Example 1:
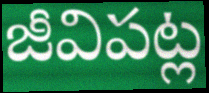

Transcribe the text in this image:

జీవిపట్ల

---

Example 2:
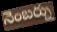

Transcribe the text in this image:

నెంబర్ను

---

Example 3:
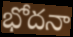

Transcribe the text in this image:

భోదనా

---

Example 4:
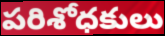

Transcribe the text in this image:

పరిశోధకులు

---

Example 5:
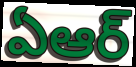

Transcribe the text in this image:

ఏఆర్